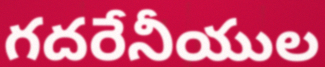
గదరేనీయుల